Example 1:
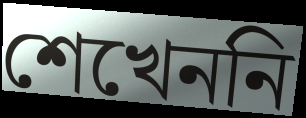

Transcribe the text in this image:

শেখেননি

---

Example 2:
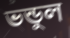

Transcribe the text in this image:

ভন্ডুল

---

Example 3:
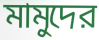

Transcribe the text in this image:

মামুদের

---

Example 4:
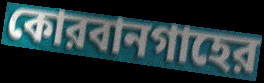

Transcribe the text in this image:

কোরবানগাহের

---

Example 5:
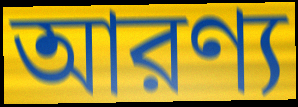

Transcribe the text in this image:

আরণ্য